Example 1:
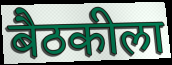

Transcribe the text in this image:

बैठकीला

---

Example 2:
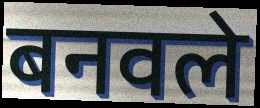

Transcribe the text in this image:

बनवले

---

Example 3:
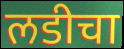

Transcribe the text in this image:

लडीचा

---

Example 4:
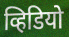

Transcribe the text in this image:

व्हिडियो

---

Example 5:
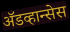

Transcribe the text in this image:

ॲडव्हान्सेस